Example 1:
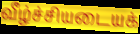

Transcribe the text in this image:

வீழ்ச்சியடையக்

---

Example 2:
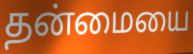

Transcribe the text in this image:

தன்மையை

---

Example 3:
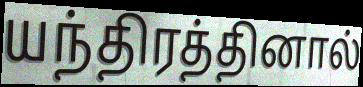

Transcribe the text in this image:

யந்திரத்தினால்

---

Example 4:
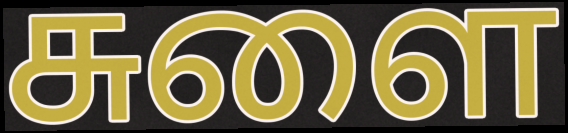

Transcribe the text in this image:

சுளை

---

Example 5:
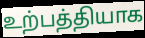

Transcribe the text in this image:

உற்பத்தியாக